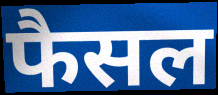
फैसल